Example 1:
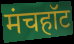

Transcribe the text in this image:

मंचहॉट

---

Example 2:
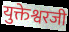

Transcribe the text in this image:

युक्तेश्वरजी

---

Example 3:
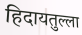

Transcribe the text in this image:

हिदायतुल्ला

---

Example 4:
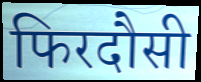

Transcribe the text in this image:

फिरदौसी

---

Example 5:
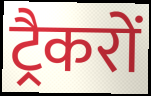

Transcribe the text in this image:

ट्रैकरों